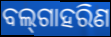
ବଲ୍‌ଗାହରିଣ